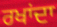
ਰਖਾਂਦਾ